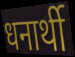
धनार्थी